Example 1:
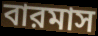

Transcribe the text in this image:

বারমাস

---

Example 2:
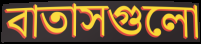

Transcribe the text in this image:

বাতাসগুলো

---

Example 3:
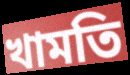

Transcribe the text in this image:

খামতি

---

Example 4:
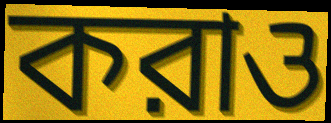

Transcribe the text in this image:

করাও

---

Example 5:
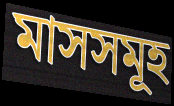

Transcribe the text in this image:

মাসসমূহ